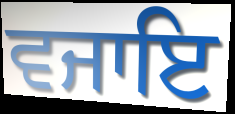
ਵਜਾਇ